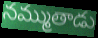
నమ్ముతాడు